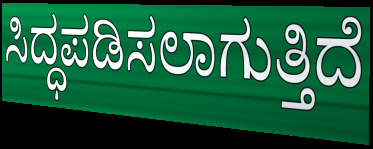
ಸಿದ್ಧಪಡಿಸಲಾಗುತ್ತಿದೆ